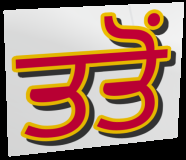
ਤਤੋਂ